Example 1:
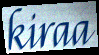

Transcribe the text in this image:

kiraa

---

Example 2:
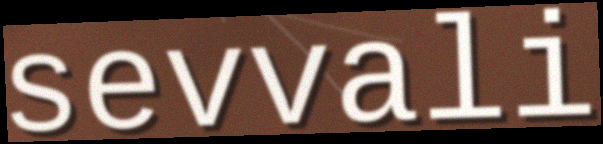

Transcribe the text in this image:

sevvali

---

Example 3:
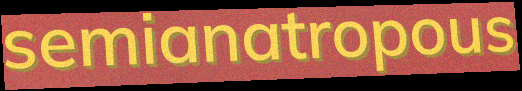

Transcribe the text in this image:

semianatropous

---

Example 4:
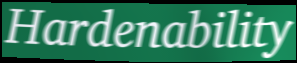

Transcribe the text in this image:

Hardenability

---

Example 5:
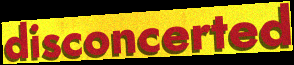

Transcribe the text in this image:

disconcerted